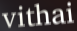
vithai